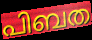
പിബത